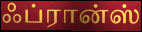
ஃப்ரான்ஸ்